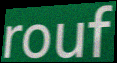
rouf